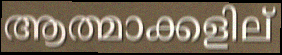
ആത്മാക്കളില്